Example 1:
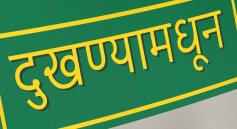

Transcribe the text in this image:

दुखण्यामधून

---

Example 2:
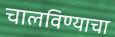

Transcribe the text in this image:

चालविण्याचा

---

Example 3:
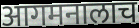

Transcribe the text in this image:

आगमनालाच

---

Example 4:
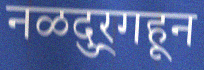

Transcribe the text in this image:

नळदुर्गहून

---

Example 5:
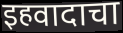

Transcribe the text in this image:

इहवादाचा